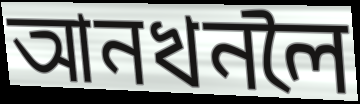
আনখনলৈ